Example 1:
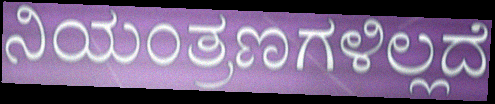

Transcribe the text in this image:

ನಿಯಂತ್ರಣಗಳಿಲ್ಲದೆ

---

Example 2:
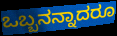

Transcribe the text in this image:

ಒಬ್ಬನನ್ನಾದರೂ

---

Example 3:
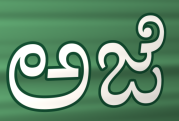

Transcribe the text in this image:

ಅಜೆ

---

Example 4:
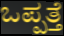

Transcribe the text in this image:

ಒಪ್ಪತ್ತೆ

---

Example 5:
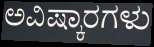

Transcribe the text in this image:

ಅವಿಷ್ಕಾರಗಳು